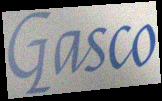
Gasco